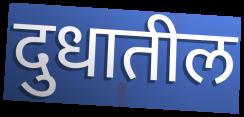
दुधातील